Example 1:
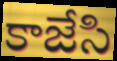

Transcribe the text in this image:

కాజేసి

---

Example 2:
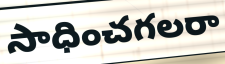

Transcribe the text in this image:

సాధించగలరా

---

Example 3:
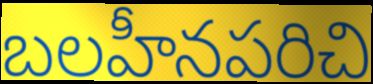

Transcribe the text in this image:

బలహీనపరిచి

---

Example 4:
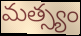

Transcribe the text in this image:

మత్స్యం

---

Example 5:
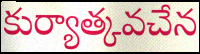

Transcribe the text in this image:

కుర్యాత్కవచేన